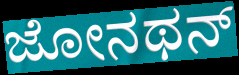
ಜೋನಥನ್